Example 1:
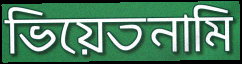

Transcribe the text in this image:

ভিয়েতনামি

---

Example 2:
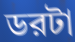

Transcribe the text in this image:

ডরটা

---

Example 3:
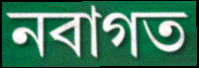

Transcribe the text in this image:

নবাগত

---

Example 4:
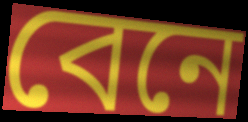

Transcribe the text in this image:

বেনে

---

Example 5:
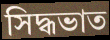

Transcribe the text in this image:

সিদ্ধভাত